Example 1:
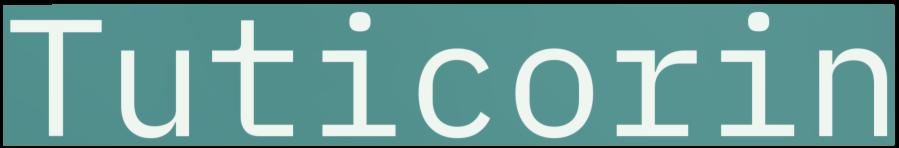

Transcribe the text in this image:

Tuticorin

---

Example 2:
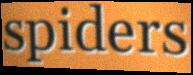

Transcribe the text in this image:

spiders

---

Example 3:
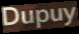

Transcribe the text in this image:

Dupuy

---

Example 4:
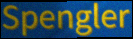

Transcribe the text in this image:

Spengler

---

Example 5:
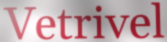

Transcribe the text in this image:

Vetrivel